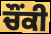
ਚੌਂਕੀ